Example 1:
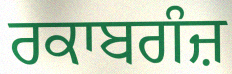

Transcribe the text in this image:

ਰਕਾਬਗੰਜ਼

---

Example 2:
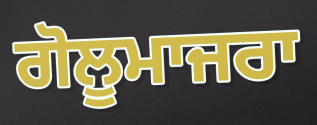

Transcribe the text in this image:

ਗੋਲੂਮਾਜਰਾ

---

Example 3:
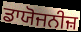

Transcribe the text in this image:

ਡਾਯੋਜਨੀਜ਼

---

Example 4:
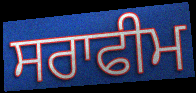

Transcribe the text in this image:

ਸਰਾਫੀਮ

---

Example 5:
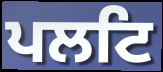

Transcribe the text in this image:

ਪਲਟਿ